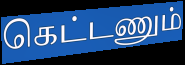
கெட்டணும்